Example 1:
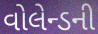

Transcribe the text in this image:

વોલેન્ડની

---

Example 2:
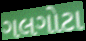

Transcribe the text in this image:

ગલગોટા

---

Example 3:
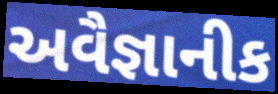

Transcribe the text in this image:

અવૈજ્ઞાનીક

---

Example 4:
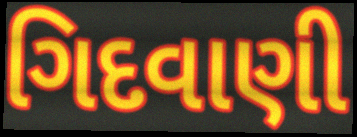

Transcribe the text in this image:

ગિદવાણી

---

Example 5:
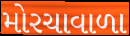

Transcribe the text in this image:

મોરચાવાળા